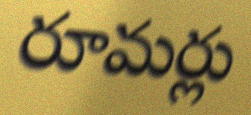
రూమర్లు